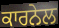
ਕਾਰਨੇਲ